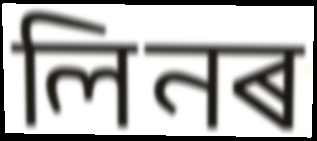
লিনৰ